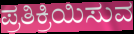
ಪ್ರತಿಕ್ರಿಯಿಸುವ